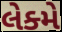
લેક્મે